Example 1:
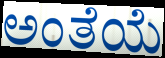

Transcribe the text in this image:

ಅಂತೆಯೆ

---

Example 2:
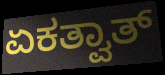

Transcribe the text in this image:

ಏಕತ್ವಾತ್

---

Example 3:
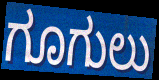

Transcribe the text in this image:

ಗೂಗುಲು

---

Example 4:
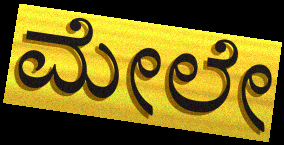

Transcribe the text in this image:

ಮೇಲೇ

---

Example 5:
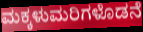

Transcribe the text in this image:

ಮಕ್ಕಳುಮರಿಗಳೊಡನೆ